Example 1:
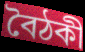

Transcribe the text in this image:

বৈঠকী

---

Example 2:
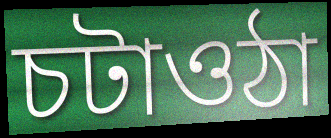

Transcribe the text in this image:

চটাওঠা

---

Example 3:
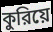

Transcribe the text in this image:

কুরিয়ে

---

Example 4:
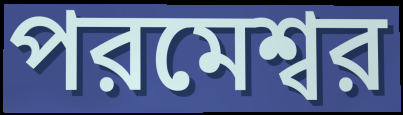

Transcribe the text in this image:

পরমেশ্বর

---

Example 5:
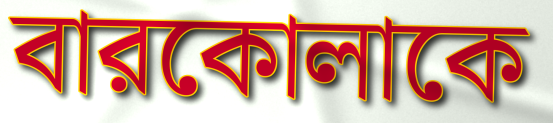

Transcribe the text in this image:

বারকোলাকে